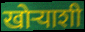
खोऱ्याशी